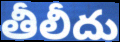
తీలీదు